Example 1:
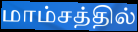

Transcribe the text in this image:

மாம்சத்தில்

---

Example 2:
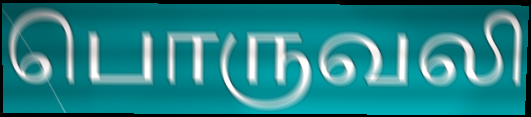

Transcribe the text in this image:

பொருவலி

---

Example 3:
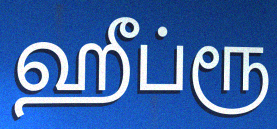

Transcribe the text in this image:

ஹீப்ரூ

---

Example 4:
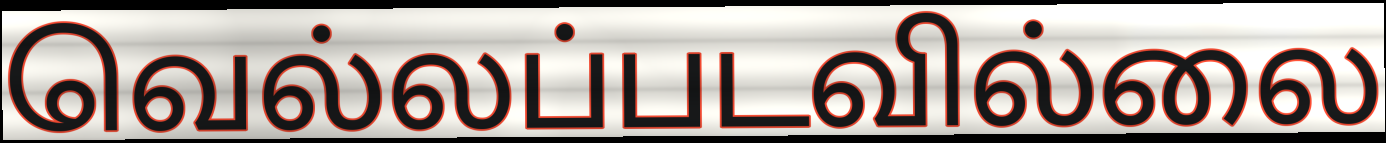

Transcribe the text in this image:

வெல்லப்படவில்லை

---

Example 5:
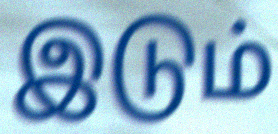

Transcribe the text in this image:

இடும்